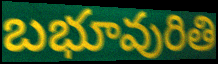
బభూవురితి